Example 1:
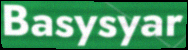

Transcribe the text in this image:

Basysyar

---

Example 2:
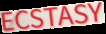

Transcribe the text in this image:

ECSTASY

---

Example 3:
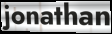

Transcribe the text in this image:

jonathan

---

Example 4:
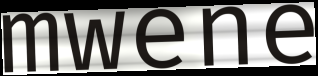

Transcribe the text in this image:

mwene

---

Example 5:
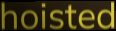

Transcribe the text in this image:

hoisted